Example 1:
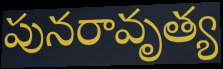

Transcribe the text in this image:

పునరావృత్య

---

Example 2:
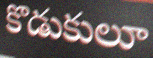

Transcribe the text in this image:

కొడుకులూ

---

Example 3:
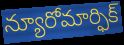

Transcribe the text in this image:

న్యూరోమార్ఫిక్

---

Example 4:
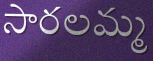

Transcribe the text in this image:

సారలమ్మ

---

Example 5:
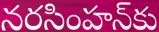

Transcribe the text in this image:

నరసింహన్‌కు